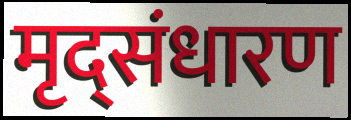
मृद्संधारण